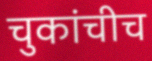
चुकांचीच